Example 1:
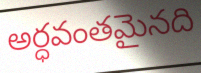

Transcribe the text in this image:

అర్ధవంతమైనది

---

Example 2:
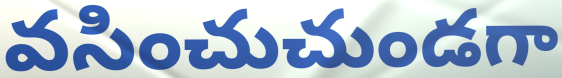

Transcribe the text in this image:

వసించుచుండగా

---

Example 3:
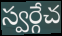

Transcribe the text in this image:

స్వర్గేచ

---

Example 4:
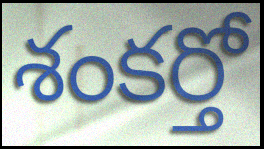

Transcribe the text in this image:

శంకర్తో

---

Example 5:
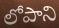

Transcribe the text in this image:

లోపాని